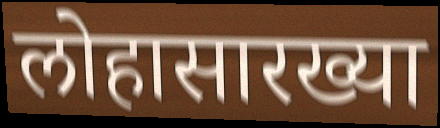
लोहासारख्या